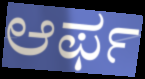
ಆರ್ಫ